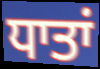
ਧਾਤਾਂ